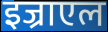
इज्राएल